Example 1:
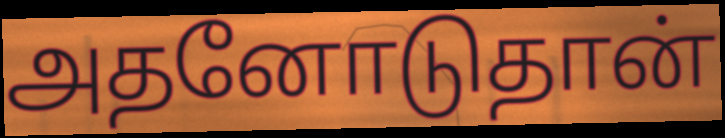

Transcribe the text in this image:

அதனோடுதான்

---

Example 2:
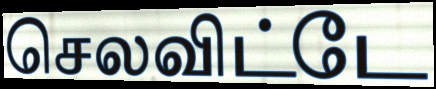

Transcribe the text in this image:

செலவிட்டே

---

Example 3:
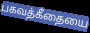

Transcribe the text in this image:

பகவத்கீதையை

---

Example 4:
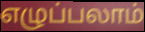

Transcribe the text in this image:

எழுப்பலாம்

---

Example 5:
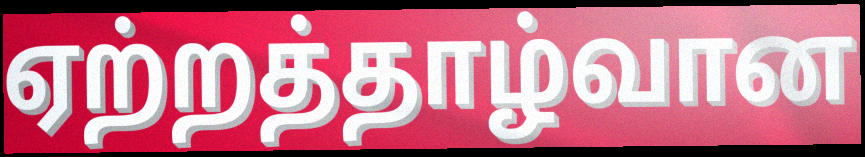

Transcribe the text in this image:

ஏற்றத்தாழ்வான